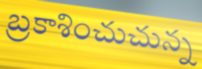
బ్రకాశించుచున్న